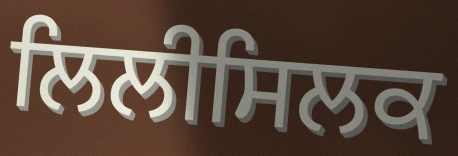
ਲਿਲੀਸਿਲਕ